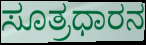
ಸೂತ್ರಧಾರನ